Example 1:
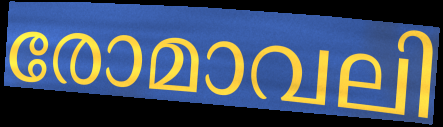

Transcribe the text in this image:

രോമാവലി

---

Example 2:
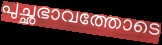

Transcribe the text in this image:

പുച്ഛഭാവത്തോടെ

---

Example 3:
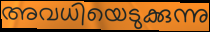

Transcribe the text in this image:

അവധിയെടുക്കുന്നു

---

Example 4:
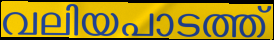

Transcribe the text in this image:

വലിയപാടത്ത്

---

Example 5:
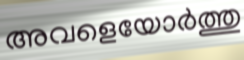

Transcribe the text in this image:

അവളെയോർത്തു